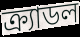
ক্র্যাডল